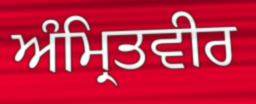
ਅੰਮ੍ਰਿਤਵੀਰ